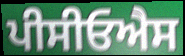
ਪੀਸੀਓਐਸ